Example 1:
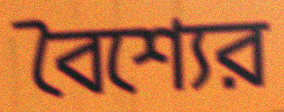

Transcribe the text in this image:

বৈশ্যের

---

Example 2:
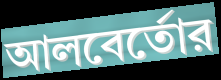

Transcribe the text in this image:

আলবের্তোর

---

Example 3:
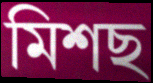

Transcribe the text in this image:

মিশছ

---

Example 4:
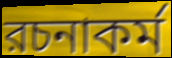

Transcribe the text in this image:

রচনাকর্ম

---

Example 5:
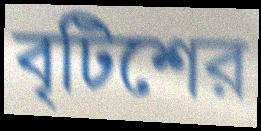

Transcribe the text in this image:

বৃটিশের